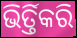
ଭିର୍ତ୍ତିକରି